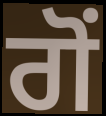
ਗੋਂ